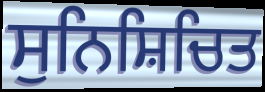
ਸੁਨਿਸ਼ਿਚਿਤ